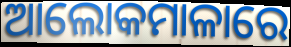
ଆଲୋକମାଳାରେ